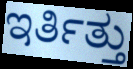
ಇರ್ತಿತ್ತು